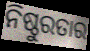
ନିଷ୍ଠୁରତାର